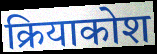
क्रियाकोश